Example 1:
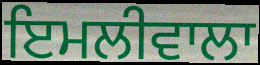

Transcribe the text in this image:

ਇਮਲੀਵਾਲਾ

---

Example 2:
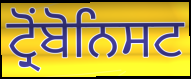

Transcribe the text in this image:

ਟ੍ਰੋਂਬੋਨਿਸਟ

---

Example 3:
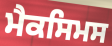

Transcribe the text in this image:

ਮੈਕਸਿਮਸ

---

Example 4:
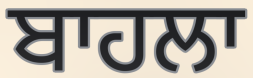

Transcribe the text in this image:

ਬਾਹਲਾ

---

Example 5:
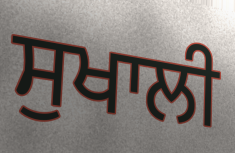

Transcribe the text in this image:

ਸੁਖਾਲੀ